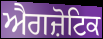
ਐਗਜ਼ੋਟਿਕ